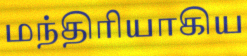
மந்திரியாகிய